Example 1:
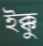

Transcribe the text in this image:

ইক্কু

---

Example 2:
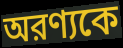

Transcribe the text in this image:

অরণ্যকে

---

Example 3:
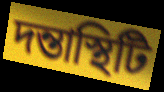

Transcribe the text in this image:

দন্তাস্থিটি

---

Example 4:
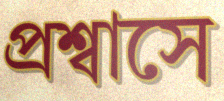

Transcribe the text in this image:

প্রশ্বাসে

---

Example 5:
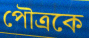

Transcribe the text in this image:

পৌত্রকে